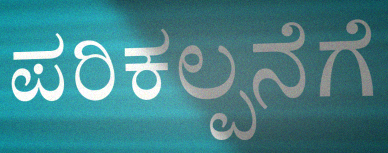
ಪರಿಕಲ್ಪನೆಗೆ